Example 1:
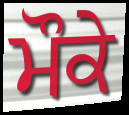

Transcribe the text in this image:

ਮੌਕੇ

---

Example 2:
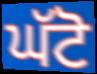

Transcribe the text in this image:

ਘੱਟੋ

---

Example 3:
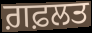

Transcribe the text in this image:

ਗ਼ਫ਼ਲਤ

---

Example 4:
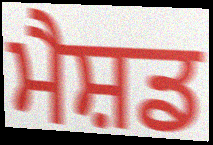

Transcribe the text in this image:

ਮੈਸ਼ਡ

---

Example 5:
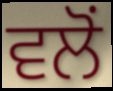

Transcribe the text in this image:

ਵਲੋਂ